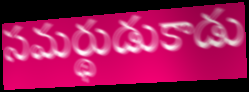
సమర్థుడుకాడు